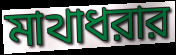
মাথাধরার